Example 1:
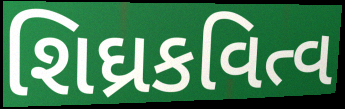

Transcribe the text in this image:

શિઘ્રકવિત્વ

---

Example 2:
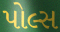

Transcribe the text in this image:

પોલ્સ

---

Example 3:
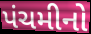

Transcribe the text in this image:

પંચમીનો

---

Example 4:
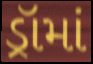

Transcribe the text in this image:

ડ્રૉમાં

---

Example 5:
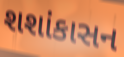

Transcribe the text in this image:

શશાંકાસન